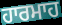
ਹਾਰਮਾਹ